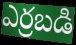
ఎర్రబడి